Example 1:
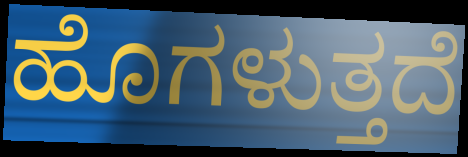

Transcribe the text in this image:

ಹೊಗಳುತ್ತದೆ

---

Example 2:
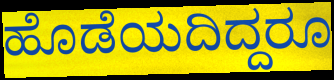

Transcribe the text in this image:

ಹೊಡೆಯದಿದ್ದರೂ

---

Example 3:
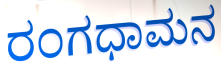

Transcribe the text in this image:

ರಂಗಧಾಮನ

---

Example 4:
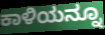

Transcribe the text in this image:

ಕಾಳಿಯನ್ನೂ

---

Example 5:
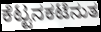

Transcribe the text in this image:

ಕೆಟ್ಟನಕಟೆನುತ